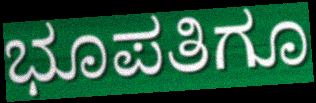
ಭೂಪತಿಗೂ